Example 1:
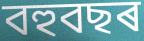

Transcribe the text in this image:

বহুবছৰ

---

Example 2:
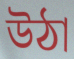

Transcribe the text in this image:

উঠা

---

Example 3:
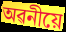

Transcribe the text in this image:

অৱনীয়ে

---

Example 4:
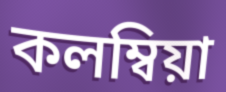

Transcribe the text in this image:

কলম্বিয়া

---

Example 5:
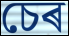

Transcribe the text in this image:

চেৰ